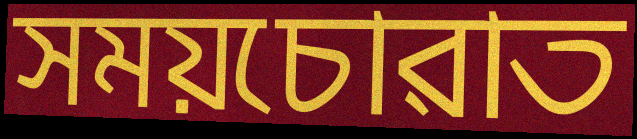
সময়চোৱাত